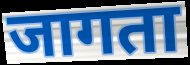
जागता